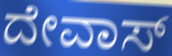
ದೇವಾಸ್